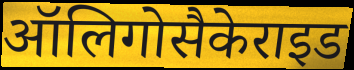
ऑलिगोसैकेराइड